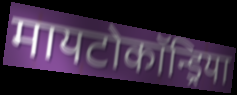
मायटोकॉन्ड्रिया